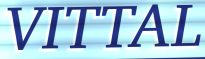
VITTAL